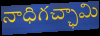
నాధిగచ్ఛామి